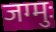
जग्मुः